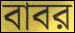
বাবর